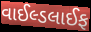
વાઈલ્ડલાઈફ